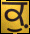
ਕ਼ੁ